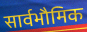
सार्वभौमिक